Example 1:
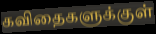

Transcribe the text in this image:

கவிதைகளுக்குள்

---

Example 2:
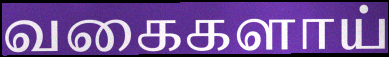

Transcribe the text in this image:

வகைகளாய்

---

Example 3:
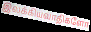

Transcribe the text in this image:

இலக்கியவாதிகளோ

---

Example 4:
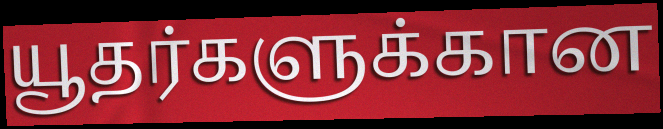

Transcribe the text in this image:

யூதர்களுக்கான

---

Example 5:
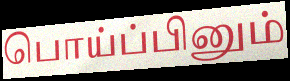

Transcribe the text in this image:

பொய்ப்பினும்